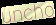
uncho